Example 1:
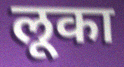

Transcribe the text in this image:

लूका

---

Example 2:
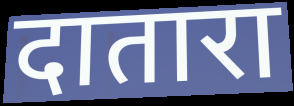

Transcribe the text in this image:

दातारा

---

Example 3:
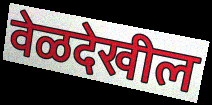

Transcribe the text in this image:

वेळदेखील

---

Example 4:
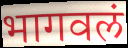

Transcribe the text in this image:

भागवलं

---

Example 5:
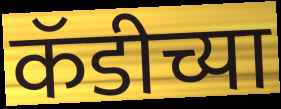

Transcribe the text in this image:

कॅडीच्या